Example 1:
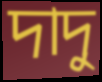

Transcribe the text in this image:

দাদু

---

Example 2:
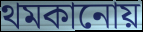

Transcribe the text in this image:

থমকানোয়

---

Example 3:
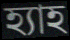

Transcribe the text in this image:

হ্যাহ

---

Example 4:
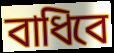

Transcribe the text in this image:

বাধিবে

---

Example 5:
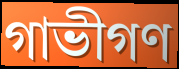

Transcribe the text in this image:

গাভীগণ